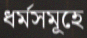
ধর্মসমূহে